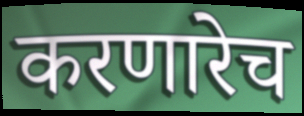
करणारेच